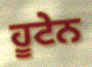
ਹੂਟੇਨ